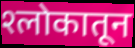
श्लोकातून